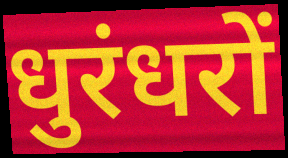
धुरंधरों